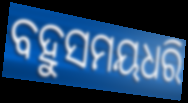
ବହୁସମୟଧରି